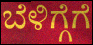
ಬೆಳಿಗ್ಗೆಗೆ